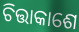
ଚିତ୍ତାକାଶେ